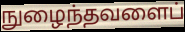
நுழைந்தவளைப்